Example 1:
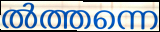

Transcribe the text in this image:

ൽത്തന്നെ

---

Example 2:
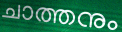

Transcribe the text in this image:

ചാത്തനും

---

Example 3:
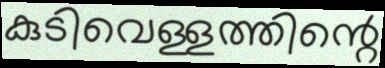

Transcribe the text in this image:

കുടിവെള്ളത്തിന്റെ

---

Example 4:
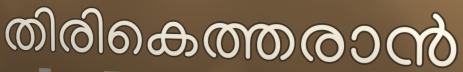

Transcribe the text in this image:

തിരികെത്തരാൻ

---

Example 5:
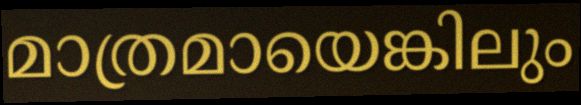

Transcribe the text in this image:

മാത്രമായെങ്കിലും